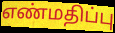
எண்மதிப்பு